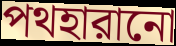
পথহারানো